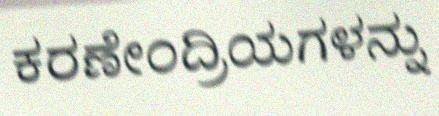
ಕರಣೇಂದ್ರಿಯಗಳನ್ನು